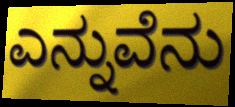
ಎನ್ನುವೆನು